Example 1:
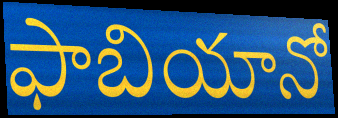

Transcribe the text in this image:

ఫాబియానో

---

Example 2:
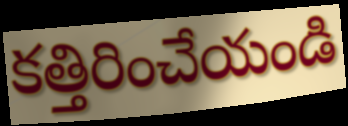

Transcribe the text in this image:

కత్తిరించేయండి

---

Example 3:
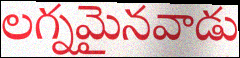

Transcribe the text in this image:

లగ్నమైనవాడు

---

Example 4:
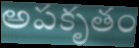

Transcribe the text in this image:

అపకృతం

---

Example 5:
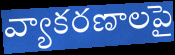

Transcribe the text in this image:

వ్యాకరణాలపై